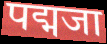
पद्मजा